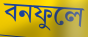
বনফুলে